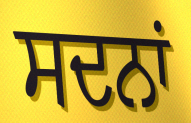
ਸਦਨਾਂ